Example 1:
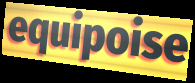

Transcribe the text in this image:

equipoise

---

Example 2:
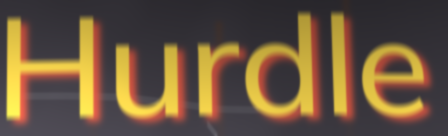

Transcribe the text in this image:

Hurdle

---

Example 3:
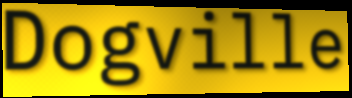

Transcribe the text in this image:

Dogville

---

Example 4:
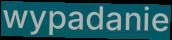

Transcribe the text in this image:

wypadanie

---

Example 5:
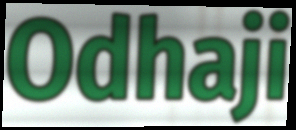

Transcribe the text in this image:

Odhaji